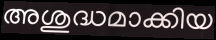
അശുദ്ധമാക്കിയ